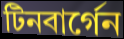
টিনবার্গেন